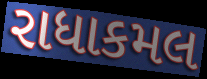
રાધાકમલ